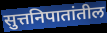
सुत्तनिपातांतील